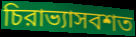
চিরাভ্যাসবশত